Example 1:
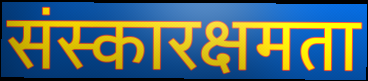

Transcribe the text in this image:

संस्कारक्षमता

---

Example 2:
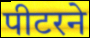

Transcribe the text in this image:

पीटरने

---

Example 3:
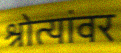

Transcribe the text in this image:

श्रोत्यांवर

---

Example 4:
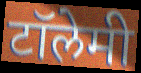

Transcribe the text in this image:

टॉलेमी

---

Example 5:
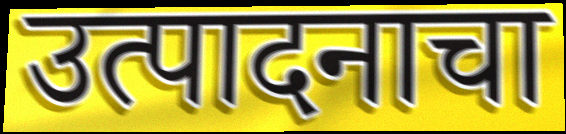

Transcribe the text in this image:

उत्पादनाचा